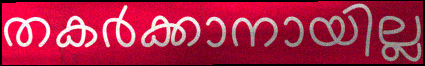
തകർക്കാനായില്ല